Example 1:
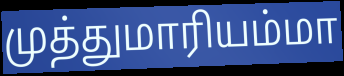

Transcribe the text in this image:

முத்துமாரியம்மா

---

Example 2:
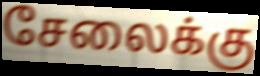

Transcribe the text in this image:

சேலைக்கு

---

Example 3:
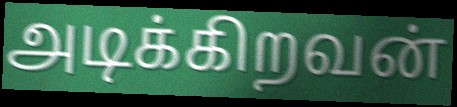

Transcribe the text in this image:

அடிக்கிறவன்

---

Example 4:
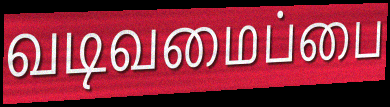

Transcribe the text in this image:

வடிவமைப்பை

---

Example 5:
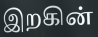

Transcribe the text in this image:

இறகின்